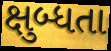
ક્ષુબ્ધતા